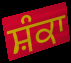
ਸ਼ੰਕਾ